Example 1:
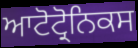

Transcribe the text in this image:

ਆਟੋਟ੍ਰੋਨਿਕਸ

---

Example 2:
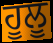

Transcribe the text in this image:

ਹੂਲੂ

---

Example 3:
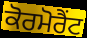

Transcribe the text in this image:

ਕੋਰਮੋਰੈਂਟ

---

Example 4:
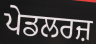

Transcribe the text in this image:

ਪੇਡਲਰਜ਼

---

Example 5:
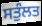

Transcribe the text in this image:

ਸਤੁੰਲਤ